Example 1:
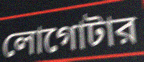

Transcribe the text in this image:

লোগোটার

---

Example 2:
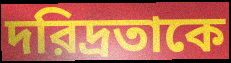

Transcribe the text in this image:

দরিদ্রতাকে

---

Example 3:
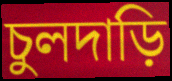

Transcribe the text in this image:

চুলদাড়ি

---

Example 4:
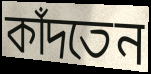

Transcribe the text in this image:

কাঁদতেন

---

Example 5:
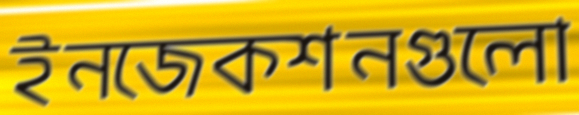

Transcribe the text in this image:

ইনজেকশনগুলো